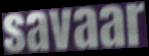
savaar